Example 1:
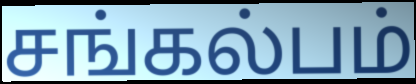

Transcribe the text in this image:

சங்கல்பம்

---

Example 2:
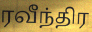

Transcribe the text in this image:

ரவீந்திர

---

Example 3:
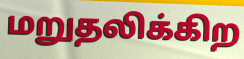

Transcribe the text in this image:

மறுதலிக்கிற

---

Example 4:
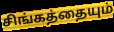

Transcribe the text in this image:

சிங்கத்தையும்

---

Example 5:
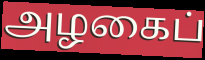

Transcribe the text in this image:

அழகைப்